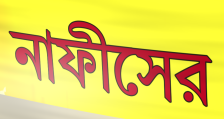
নাফীসের